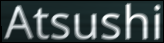
Atsushi